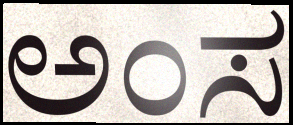
ಅಂಸ